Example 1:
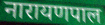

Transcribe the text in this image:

नारायणपाल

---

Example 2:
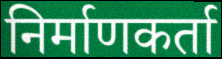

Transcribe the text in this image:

निर्माणकर्ता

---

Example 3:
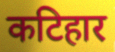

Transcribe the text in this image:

कटिहार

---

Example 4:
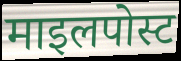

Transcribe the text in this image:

माइलपोस्ट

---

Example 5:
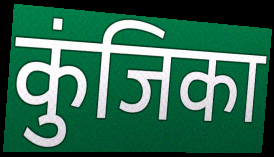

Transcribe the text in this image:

कुंजिका